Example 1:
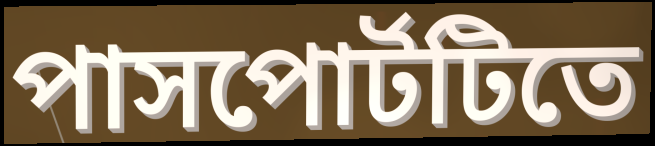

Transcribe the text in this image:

পাসপোর্টটিতে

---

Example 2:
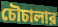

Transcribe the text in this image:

চৌচালার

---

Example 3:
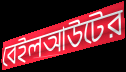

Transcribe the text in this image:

বেইলআউটের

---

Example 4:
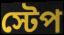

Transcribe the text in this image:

স্টেপ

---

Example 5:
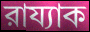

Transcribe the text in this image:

রায্যাক